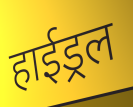
हाईड्रल